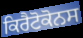
ਕਿਰੈਟੋਕੋਨਸ